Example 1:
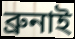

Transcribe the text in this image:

ব্ৰুনাই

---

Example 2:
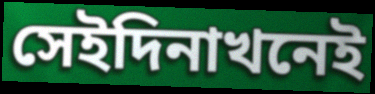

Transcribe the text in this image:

সেইদিনাখনেই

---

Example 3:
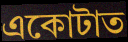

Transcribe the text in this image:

একোটাত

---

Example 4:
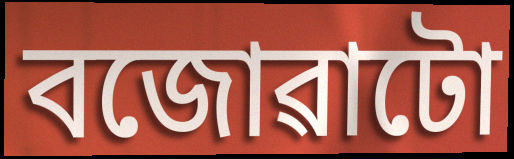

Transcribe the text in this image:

বজোৱাটো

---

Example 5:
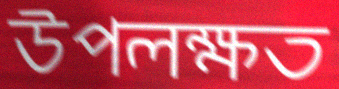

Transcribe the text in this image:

উপলক্ষত